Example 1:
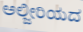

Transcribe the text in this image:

ಅಲ್ಜೀರಿಯದ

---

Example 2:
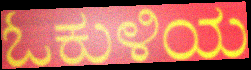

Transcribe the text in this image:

ಓಕುಳಿಯ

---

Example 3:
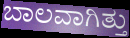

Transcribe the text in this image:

ಬಾಲವಾಗಿತ್ತು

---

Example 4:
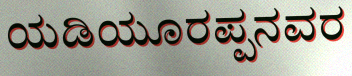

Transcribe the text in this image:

ಯಡಿಯೂರಪ್ಪನವರ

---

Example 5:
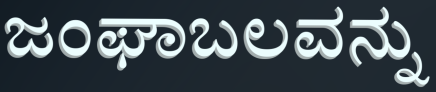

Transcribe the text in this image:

ಜಂಘಾಬಲವನ್ನು